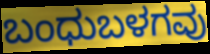
ಬಂಧುಬಳಗವು